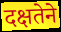
दक्षतेने